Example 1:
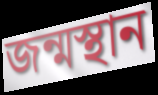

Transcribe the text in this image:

জন্মস্থান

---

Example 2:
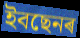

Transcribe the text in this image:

ইবছেনৰ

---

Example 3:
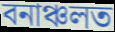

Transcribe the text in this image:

বনাঞ্চলত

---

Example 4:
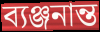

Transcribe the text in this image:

ব্যঞ্জনান্ত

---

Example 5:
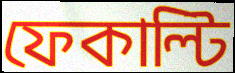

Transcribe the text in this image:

ফেকাল্টি